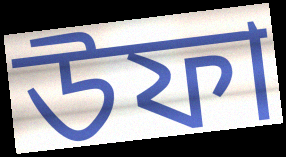
উফা